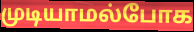
முடியாமல்போக